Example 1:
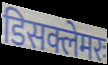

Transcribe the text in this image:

डिसक्लेमरः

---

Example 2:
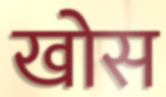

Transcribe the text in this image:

खोस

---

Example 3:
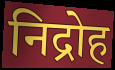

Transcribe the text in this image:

निद्रोह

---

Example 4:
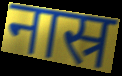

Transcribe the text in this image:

नास्र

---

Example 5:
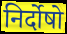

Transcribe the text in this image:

निर्दोषो